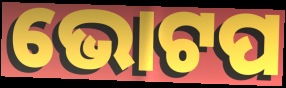
ଭୋଟପ